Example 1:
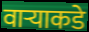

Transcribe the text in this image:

वाऱ्याकडे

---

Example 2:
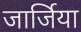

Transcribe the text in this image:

जार्जिया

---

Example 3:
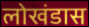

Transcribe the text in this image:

लोखंडास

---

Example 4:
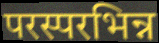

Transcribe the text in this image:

परस्परभिन्न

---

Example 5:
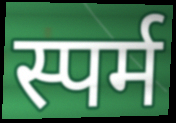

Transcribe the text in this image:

स्पर्म